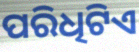
ପରିଧିଟିଏ